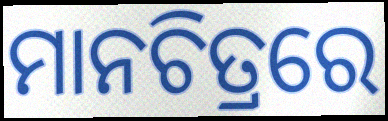
ମାନଚିତ୍ରରେ